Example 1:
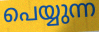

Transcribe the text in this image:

പെയ്യുന്ന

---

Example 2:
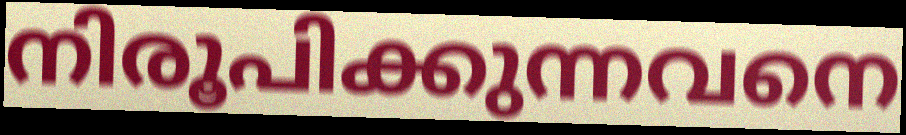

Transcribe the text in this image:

നിരൂപിക്കുന്നവനെ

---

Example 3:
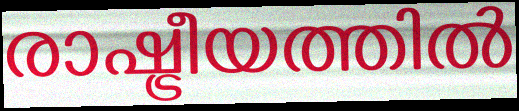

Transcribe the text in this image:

രാഷ്ട്രീയത്തിൽ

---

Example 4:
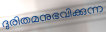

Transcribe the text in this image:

ദുരിതമനുഭവിക്കുന്ന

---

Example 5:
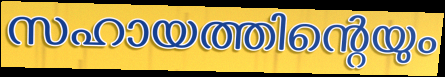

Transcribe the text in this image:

സഹായത്തിന്റെയും